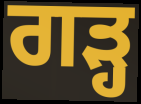
ਗੜ੍ਹ